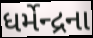
ધર્મેન્દ્રના